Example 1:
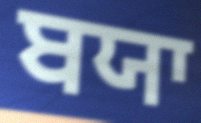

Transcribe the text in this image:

ਬਯਾ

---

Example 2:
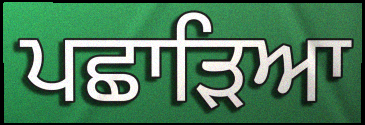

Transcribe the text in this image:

ਪਛਾੜਿਆ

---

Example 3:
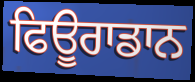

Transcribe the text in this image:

ਫਿਊਰਾਡਾਨ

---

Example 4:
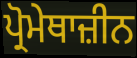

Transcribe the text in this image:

ਪ੍ਰੋਮੇਥਾਜ਼ੀਨ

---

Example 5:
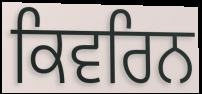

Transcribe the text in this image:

ਕਿਵਰਿਨ